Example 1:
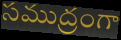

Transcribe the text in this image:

సముద్రంగా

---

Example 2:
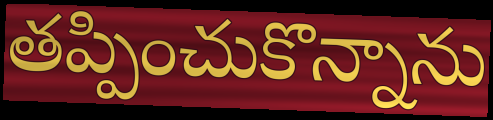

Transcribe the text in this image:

తప్పించుకొన్నాను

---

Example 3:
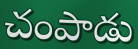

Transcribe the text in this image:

చంపాడు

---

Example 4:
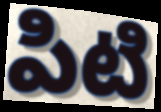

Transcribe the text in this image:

పిటి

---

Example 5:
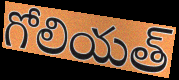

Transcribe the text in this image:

గోలియత్